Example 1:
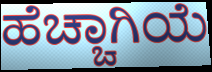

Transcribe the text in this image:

ಹೆಚ್ಚಾಗಿಯೆ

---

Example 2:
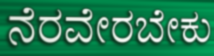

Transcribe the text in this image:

ನೆರವೇರಬೇಕು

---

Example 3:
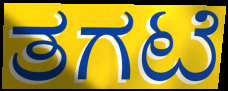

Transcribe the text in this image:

ತಗಟೆ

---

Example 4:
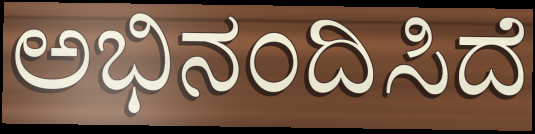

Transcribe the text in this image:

ಅಭಿನಂದಿಸಿದೆ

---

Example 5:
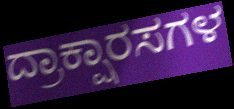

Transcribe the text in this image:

ದ್ರಾಕ್ಷಾರಸಗಳ